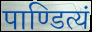
पाण्डित्यं